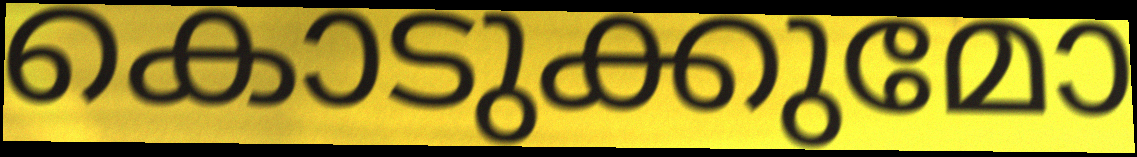
കൊടുക്കുമോ